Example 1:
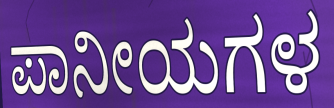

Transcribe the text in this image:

ಪಾನೀಯಗಳ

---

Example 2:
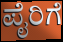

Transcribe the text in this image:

ಪೈರಿಗೆ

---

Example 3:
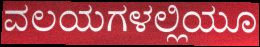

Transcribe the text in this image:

ವಲಯಗಳಲ್ಲಿಯೂ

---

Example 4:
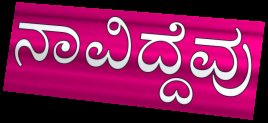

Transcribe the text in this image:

ನಾವಿದ್ದೆವು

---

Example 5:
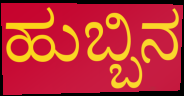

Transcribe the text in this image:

ಹುಬ್ಬಿನ